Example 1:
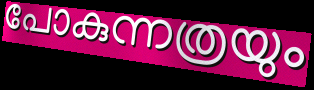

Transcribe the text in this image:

പോകുന്നത്രയും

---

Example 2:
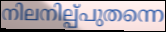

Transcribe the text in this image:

നിലനില്പ്പുതന്നെ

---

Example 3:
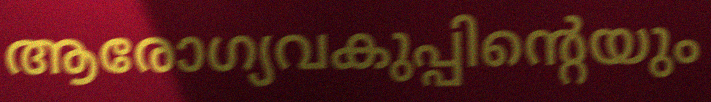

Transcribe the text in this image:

ആരോഗ്യവകുപ്പിന്റെയും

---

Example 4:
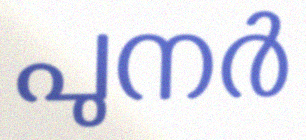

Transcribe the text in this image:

പുനർ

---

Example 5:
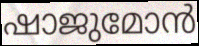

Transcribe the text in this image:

ഷാജുമോൻ